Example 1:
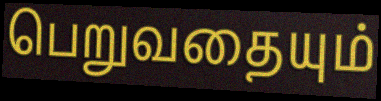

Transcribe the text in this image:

பெறுவதையும்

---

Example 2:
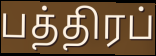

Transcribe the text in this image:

பத்திரப்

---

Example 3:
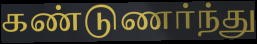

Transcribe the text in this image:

கண்டுணர்ந்து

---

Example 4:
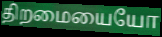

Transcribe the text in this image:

திறமையையோ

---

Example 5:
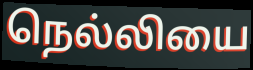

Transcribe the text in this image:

நெல்லியை